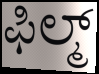
ಫಿಲ್ಮ್